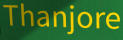
Thanjore